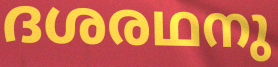
ദശരഥനു